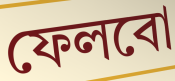
ফেলবো